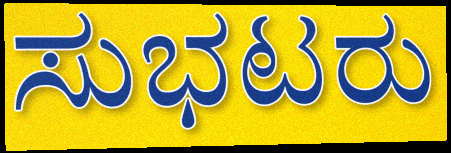
ಸುಭಟರು